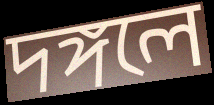
দঙ্গলে